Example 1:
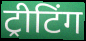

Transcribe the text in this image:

ट्रीटिंग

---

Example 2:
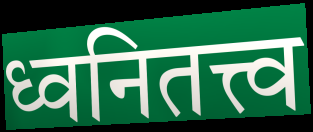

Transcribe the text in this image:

ध्वनितत्त्व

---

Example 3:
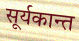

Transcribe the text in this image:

सूर्यकान्त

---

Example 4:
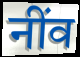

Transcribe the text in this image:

नींव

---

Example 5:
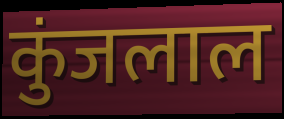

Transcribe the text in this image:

कुंजलाल